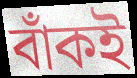
বাঁকই